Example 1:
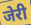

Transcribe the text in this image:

जेरी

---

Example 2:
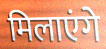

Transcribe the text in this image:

मिलाएंगे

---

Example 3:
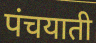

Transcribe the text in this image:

पंचयाती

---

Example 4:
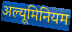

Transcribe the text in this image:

अल्यूमिनियम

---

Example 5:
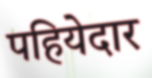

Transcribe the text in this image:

पहियेदार